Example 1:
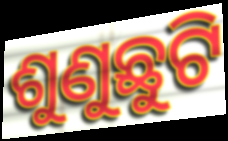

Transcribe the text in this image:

ଶୁଣୁଛୁଟି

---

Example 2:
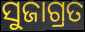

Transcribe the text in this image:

ସୁଜାଗ୍ରତ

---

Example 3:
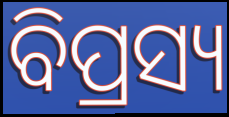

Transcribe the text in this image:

ବିପ୍ରସ୍ୟ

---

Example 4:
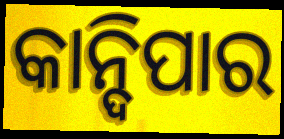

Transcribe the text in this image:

କାନ୍ଦିପାର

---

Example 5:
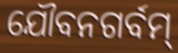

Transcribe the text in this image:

ଯୌବନଗର୍ବମ୍